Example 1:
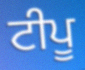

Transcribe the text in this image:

ਟੀਪੂ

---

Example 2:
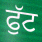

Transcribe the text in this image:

ਫੁੱਟ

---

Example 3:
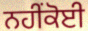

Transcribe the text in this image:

ਨਹੀਂਕੋਈ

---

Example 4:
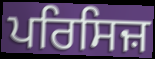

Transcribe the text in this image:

ਪਰਿਸਿਜ਼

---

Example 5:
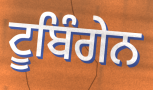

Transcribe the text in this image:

ਟੂਬਿੰਗੇਨ